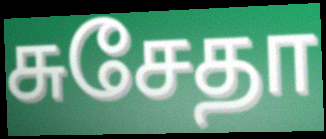
சுசேதா